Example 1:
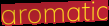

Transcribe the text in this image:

aromatic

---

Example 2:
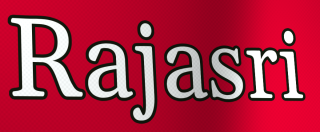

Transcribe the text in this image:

Rajasri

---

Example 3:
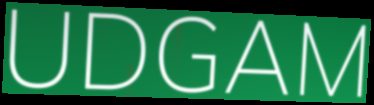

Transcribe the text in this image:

UDGAM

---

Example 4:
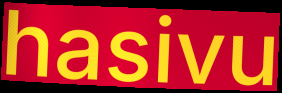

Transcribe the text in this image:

hasivu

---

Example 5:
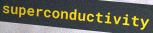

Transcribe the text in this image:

superconductivity